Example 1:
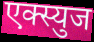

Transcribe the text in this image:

एक्स्युज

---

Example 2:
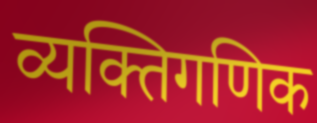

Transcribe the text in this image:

व्यक्तिगणिक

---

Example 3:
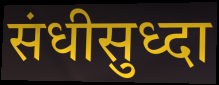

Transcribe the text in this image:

संधीसुध्दा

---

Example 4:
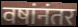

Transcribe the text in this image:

वषांनंतर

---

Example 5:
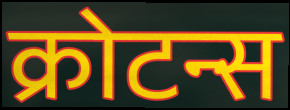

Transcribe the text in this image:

क्रोटन्स